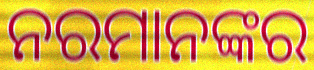
ନରମାନଙ୍କର